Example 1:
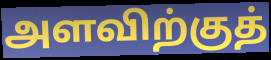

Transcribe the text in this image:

அளவிற்குத்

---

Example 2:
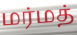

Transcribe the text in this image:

மர்மத்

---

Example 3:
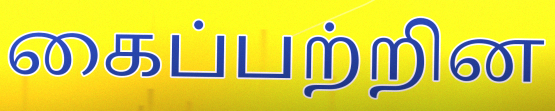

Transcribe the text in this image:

கைப்பற்றின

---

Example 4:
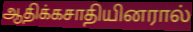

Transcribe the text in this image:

ஆதிக்கசாதியினரால்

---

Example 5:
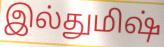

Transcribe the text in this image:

இல்துமிஷ்